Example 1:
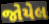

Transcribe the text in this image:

જોયેલ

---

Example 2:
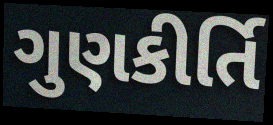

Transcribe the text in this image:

ગુણકીર્તિ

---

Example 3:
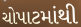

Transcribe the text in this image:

ચોપાટમાંથી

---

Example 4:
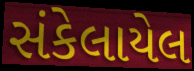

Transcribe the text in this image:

સંકેલાયેલ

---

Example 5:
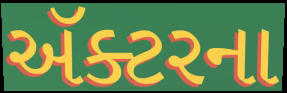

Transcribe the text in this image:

ઍક્ટરના